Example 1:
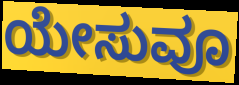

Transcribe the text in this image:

ಯೇಸುವೂ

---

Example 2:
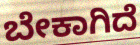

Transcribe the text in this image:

ಬೇಕಾಗಿದೆ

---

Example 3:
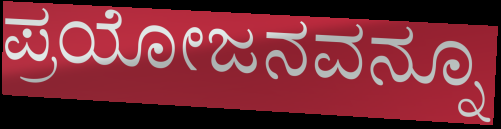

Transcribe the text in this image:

ಪ್ರಯೋಜನವನ್ನೂ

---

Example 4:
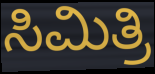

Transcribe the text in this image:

ಸಿಮಿತ್ರಿ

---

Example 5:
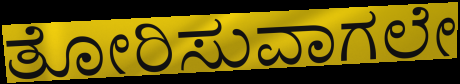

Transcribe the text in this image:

ತೋರಿಸುವಾಗಲೇ